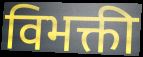
विभक्ती